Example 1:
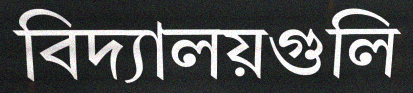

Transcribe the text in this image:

বিদ্যালয়গুলি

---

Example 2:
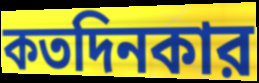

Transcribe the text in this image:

কতদিনকার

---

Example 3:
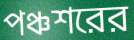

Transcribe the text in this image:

পঞ্চশরের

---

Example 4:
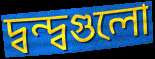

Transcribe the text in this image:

দ্বন্দ্বগুলো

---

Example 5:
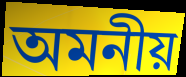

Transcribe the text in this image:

অমনীয়